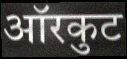
ऑरकुट